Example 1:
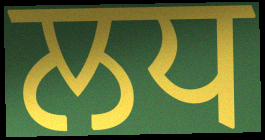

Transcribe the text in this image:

ਲਧ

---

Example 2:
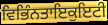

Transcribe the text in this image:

ਵਿਭਿੰਨਤਾਇਕੁਇਟੀ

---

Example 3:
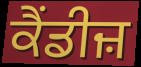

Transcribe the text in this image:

ਕੈਂਡੀਜ਼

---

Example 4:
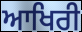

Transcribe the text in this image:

ਆਖਿਰੀ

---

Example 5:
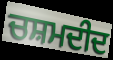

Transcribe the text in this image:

ਚਸ਼ਮਦੀਦ